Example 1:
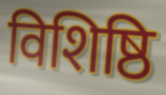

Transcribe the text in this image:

विशिष्ठि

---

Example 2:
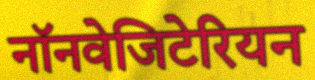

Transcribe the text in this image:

नॉनवेजिटेरियन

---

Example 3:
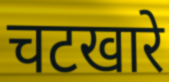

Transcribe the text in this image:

चटखारे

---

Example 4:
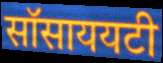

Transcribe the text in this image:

सॉसाययटी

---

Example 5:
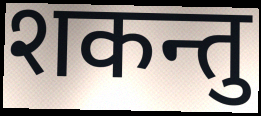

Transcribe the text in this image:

शकन्तु